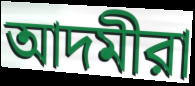
আদমীরা